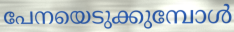
പേനയെടുക്കുമ്പോൾ